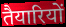
तैयारियों